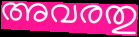
അവരതു